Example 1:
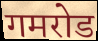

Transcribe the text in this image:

गमरोड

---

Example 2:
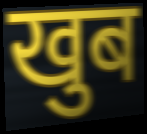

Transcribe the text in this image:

खुब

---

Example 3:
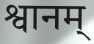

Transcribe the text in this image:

श्वानम्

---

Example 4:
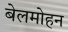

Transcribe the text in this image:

बेलमोहन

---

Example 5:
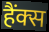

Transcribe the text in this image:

हैंक्‍स